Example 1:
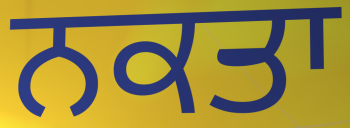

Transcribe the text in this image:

ਨਕਤਾ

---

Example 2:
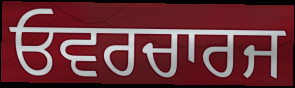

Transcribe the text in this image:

ਓਵਰਚਾਰਜ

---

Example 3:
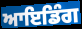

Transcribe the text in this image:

ਆਇਡਿੰਗ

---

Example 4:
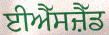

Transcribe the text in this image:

ਈਐੱਸਜ਼ੈੱਡ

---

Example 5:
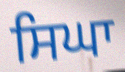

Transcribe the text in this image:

ਸਿਘਾ